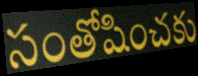
సంతోషించకు